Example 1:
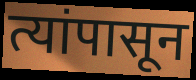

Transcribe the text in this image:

त्यांपासून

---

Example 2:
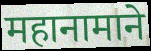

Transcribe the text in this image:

महानामाने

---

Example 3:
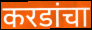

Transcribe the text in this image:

करडांचा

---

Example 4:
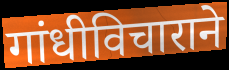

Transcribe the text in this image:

गांधीविचाराने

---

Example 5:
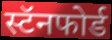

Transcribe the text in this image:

स्टॅनफोर्ड